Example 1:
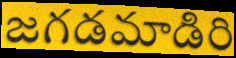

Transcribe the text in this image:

జగడమాడిరి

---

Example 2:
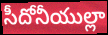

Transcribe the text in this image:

సీదోనీయుల్లా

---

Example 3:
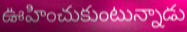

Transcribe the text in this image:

ఊహించుకుంటున్నాడు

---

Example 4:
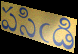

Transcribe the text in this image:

పసిఁడి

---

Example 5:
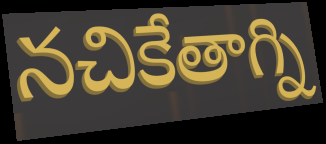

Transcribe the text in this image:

నచికేతాగ్ని